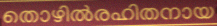
തൊഴിൽരഹിതനായ